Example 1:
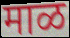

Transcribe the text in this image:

माळ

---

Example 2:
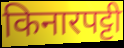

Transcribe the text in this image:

किनारपट्टी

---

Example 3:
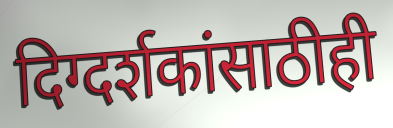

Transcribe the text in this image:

दिग्दर्शकांसाठीही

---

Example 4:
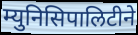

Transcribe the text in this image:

म्युनिसिपालिटीने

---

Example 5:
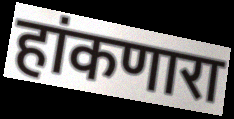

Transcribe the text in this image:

हांकणारा